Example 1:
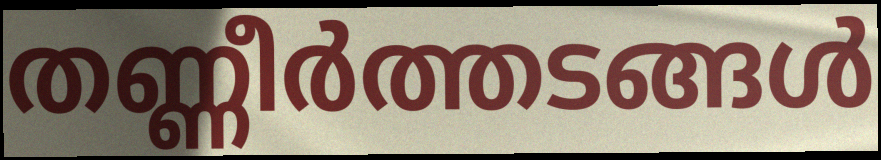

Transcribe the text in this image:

തണ്ണീർത്തടങ്ങൾ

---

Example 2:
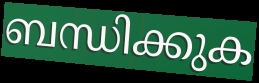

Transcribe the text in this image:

ബന്ധിക്കുക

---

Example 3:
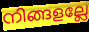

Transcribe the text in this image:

നിങ്ങളല്ലേ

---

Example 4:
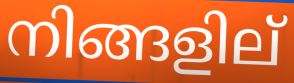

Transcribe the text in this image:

നിങ്ങളില്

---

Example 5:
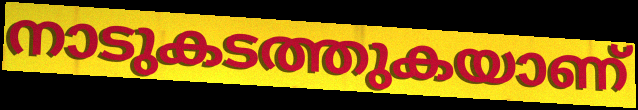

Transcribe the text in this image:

നാടുകടത്തുകയാണ്